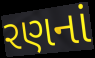
રણનાં